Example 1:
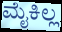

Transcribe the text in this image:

ಮೈಕಿಲ್ಲ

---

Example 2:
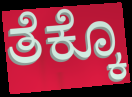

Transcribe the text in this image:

ತೆಕ್ಕೊ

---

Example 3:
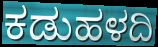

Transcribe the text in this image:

ಕಡುಹಳದಿ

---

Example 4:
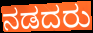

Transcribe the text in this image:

ನಡದರು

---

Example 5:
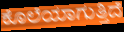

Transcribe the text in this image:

ಕೊಲೆಯಾಗುತ್ತಿದೆ